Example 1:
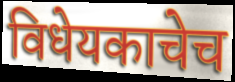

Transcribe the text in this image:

विधेयकाचेच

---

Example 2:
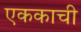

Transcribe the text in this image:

एककाची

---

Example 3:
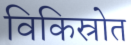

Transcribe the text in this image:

विकिस्रोत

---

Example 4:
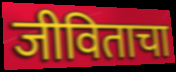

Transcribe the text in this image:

जीविताचा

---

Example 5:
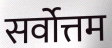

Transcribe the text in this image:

सर्वोत्तम